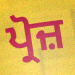
ਪ੍ਰੋਜ਼